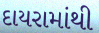
દાયરામાંથી